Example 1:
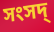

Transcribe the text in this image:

সংসদ্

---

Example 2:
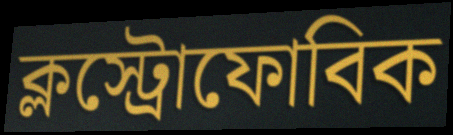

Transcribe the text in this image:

ক্লস্ট্রোফোবিক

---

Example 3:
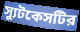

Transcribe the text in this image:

স্যুটকেসটির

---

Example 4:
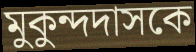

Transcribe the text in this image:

মুকুন্দদাসকে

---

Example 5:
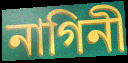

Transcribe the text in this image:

নাগিনী